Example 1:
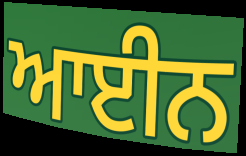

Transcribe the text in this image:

ਆਈਨ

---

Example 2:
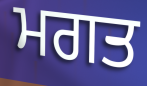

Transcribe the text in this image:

ਮਗਤ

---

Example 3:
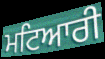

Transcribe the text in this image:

ਮਟਿਆਰੀ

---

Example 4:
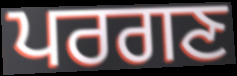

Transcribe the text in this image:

ਪਰਗਣ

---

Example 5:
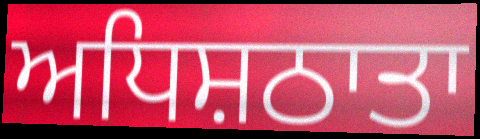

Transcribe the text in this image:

ਅਧਿਸ਼ਠਾਤਾ